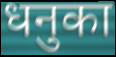
धनुका